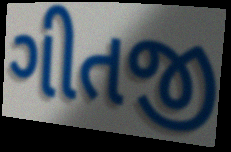
ગીતજી